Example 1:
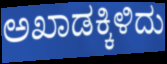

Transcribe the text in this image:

ಅಖಾಡಕ್ಕಿಳಿದು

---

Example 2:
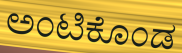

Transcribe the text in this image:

ಅಂಟಿಕೊಂಡ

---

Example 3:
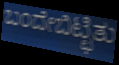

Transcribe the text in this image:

ಬಂದೇಬಿಟ್ಟಿತು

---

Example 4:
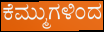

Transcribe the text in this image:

ಕೆಮ್ಮುಗಳಿಂದ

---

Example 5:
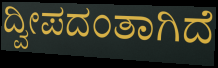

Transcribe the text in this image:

ದ್ವೀಪದಂತಾಗಿದೆ